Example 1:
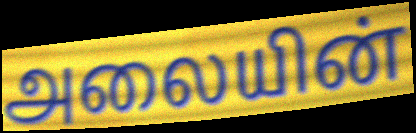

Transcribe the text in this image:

அலையின்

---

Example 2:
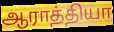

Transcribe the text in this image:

ஆராத்தியா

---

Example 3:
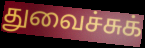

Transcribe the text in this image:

துவைச்சுக்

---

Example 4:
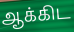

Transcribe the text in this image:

ஆக்கிட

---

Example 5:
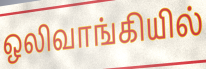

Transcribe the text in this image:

ஒலிவாங்கியில்